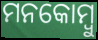
ମନକୋମ୍ବୁ